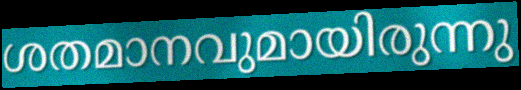
ശതമാനവുമായിരുന്നു